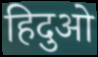
हिदुओ